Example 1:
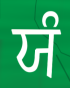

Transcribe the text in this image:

ਯੰ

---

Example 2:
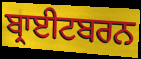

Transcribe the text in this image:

ਬ੍ਰਾਈਟਬਰਨ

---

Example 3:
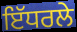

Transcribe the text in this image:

ਇੱਧਰਲੇ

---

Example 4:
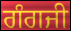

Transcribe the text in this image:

ਗੰਗਜੀ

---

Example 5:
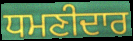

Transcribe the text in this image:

ਧਮਣੀਦਾਰ